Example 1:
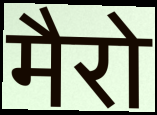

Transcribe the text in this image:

मैरो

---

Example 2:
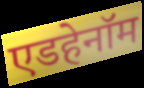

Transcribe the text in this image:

एडहेनॉम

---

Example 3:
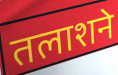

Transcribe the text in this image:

तलाशने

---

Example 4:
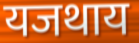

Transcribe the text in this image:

यजथाय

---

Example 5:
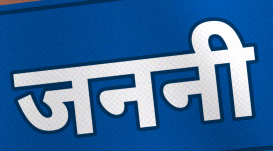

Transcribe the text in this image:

जननी